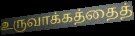
உருவாக்கத்தைத்